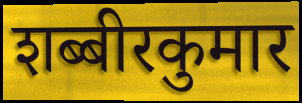
शब्बीरकुमार